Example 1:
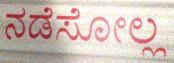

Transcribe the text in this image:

ನಡೆಸೋಲ್ಲ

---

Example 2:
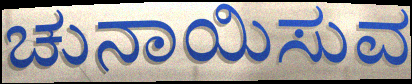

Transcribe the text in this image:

ಚುನಾಯಿಸುವ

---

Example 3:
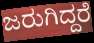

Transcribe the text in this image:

ಜರುಗಿದ್ದರೆ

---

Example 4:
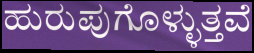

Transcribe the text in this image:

ಹುರುಪುಗೊಳ್ಳುತ್ತವೆ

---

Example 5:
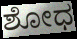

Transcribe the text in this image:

ಶೋಧ